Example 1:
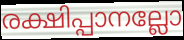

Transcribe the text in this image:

രക്ഷിപ്പാനല്ലോ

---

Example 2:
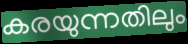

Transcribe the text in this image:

കരയുന്നതിലും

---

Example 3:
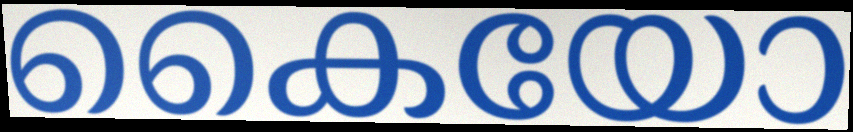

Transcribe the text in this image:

കൈയോ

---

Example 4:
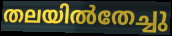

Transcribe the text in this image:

തലയിൽതേച്ചു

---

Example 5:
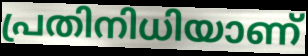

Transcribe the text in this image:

പ്രതിനിധിയാണ്